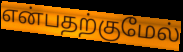
என்பதற்குமேல்